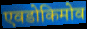
एवडोकिमोव